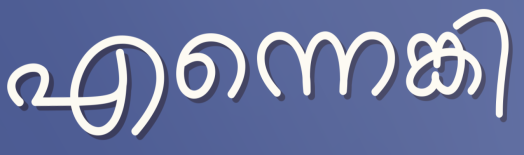
എന്നെങ്കി